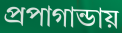
প্রপাগান্ডায়